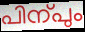
പിന്പും